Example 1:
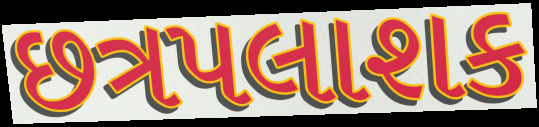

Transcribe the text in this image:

છત્રપલાશક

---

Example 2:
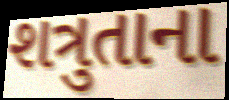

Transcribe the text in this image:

શત્રુતાના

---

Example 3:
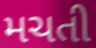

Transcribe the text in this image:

મચતી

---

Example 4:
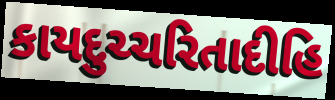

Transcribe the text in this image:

કાયદુચ્ચરિતાદીહિ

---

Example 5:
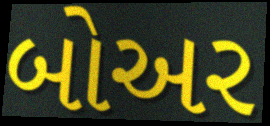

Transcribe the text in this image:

બોઅર